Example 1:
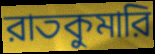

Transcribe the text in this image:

রাতকুমারি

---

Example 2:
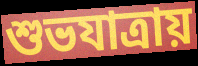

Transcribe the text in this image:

শুভযাত্রায়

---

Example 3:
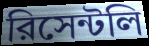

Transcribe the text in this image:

রিসেন্টলি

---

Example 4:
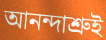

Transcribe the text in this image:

আনন্দাশ্রুই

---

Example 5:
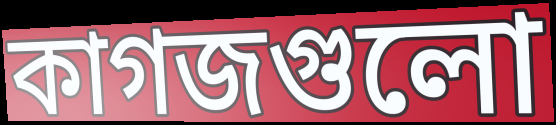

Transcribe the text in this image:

কাগজগুলো